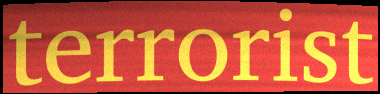
terrorist